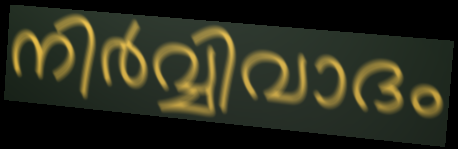
നിർവ്വിവാദം